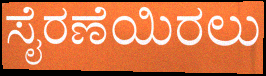
ಸೈರಣೆಯಿರಲು